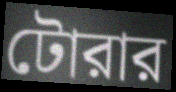
টোরার